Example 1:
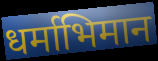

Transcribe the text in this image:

धर्माभिमान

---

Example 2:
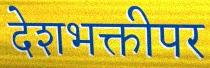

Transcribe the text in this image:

देशभक्तीपर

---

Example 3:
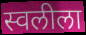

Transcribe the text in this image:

स्वलीला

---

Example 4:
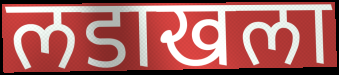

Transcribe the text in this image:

लडाखला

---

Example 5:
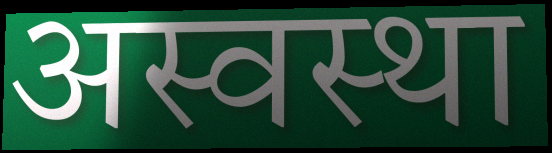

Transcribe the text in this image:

अस्वस्था